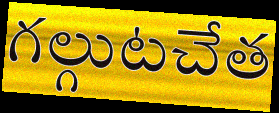
గల్గుటచేత